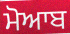
ਮੋਆਬ